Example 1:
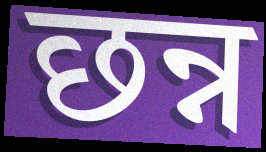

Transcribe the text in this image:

छन्न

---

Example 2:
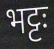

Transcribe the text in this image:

भट्टः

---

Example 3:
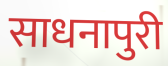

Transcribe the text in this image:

साधनापुरी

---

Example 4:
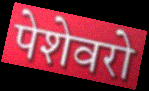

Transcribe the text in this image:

पेशेवरो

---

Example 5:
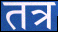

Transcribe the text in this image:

तत्र